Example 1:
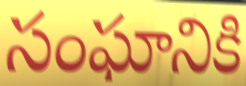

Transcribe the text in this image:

సంఘానికి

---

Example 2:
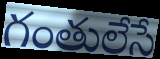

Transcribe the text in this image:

గంతులేసే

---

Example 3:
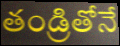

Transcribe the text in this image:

తండ్రితోనే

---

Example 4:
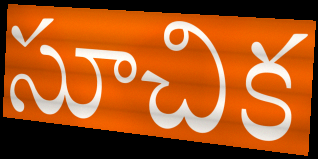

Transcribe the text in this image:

సూచిక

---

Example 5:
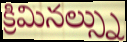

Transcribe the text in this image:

క్రిమినల్స్ను